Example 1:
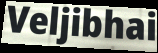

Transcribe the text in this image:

Veljibhai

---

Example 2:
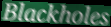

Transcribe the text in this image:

Blackholes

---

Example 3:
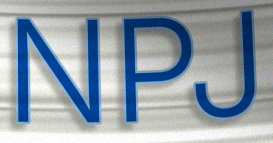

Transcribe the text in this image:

NPJ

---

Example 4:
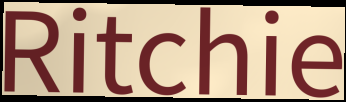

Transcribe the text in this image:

Ritchie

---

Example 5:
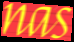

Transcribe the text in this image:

nas